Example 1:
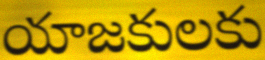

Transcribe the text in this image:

యాజకులకు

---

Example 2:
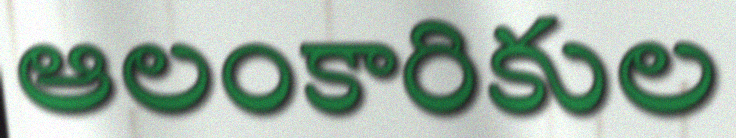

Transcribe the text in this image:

ఆలంకారికుల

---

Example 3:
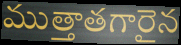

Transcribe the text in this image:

ముత్తాతగారైన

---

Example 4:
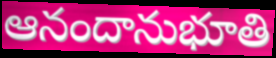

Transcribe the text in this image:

ఆనందానుభూతి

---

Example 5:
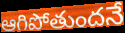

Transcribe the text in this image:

ఆగిపోతుందనే